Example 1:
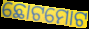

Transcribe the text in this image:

ଛୋଟମୋଟ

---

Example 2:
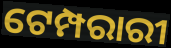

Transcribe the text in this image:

ଟେମ୍ପରାରୀ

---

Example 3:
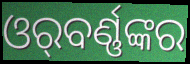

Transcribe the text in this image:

ଓର୍‌ବର୍ଣ୍ଣଙ୍କର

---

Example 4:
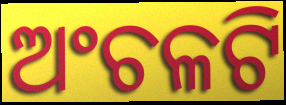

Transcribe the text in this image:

ଅଂଚଳଟି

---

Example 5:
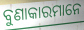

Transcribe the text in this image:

ବୁଣାକାରମାନେ